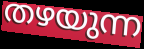
തഴയുന്ന